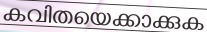
കവിതയെക്കാക്കുക